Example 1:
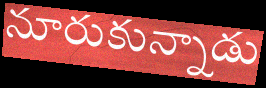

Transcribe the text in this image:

నూరుకున్నాడు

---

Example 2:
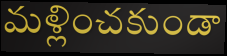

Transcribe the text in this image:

మళ్లించకుండా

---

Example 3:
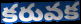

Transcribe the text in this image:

కరువక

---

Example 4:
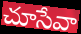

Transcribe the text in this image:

చూసేవా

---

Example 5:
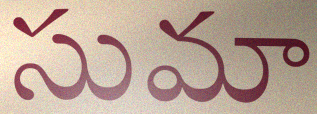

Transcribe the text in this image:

సుమా